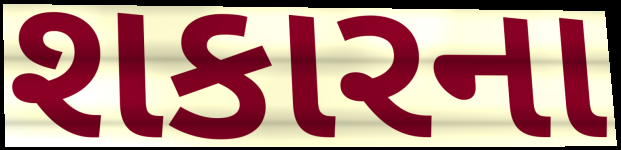
શકારના